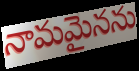
నామమైనను